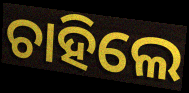
ଚାହିଲେ